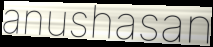
anushasan